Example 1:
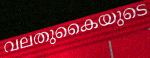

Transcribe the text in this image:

വലതുകൈയുടെ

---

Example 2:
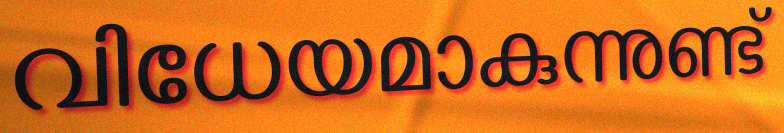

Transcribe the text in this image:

വിധേയമാകുന്നുണ്ട്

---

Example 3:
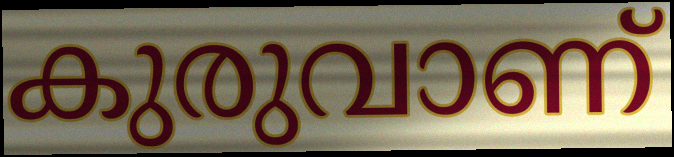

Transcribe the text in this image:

കുരുവാണ്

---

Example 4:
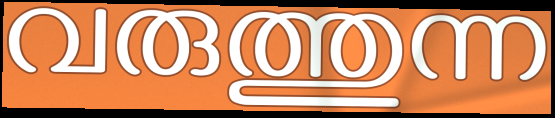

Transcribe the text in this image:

വരുത്തുന്ന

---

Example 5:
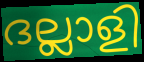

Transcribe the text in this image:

ദല്ലാളി